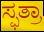
ಸ್ಫತ್ರಾ